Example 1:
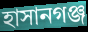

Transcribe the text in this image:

হাসানগঞ্জ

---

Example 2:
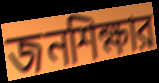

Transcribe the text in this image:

জনশিক্ষার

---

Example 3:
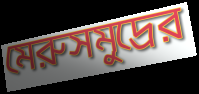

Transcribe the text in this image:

মেরুসমুদ্রের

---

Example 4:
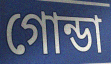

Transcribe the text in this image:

গোন্ডা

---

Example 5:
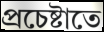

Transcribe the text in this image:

প্রচেষ্টাতে